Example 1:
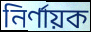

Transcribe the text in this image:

নিৰ্ণায়ক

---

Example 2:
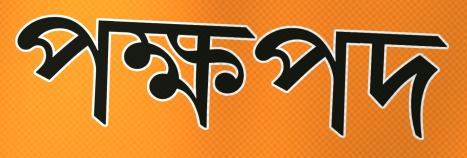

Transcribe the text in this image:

পক্ষপদ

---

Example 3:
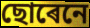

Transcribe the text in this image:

ছোৰেনে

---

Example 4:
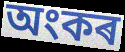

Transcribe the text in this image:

অংকৰ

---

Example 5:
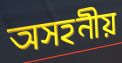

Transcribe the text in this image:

অসহনীয়